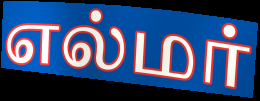
எல்மர்